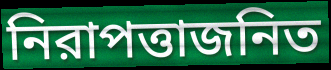
নিরাপত্তাজনিত